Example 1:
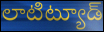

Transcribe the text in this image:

లాటిట్యూడ్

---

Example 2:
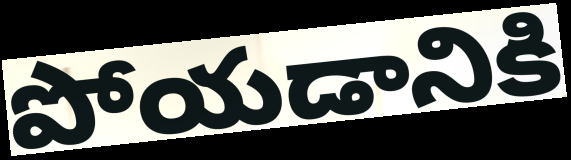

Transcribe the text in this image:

పోయడానికి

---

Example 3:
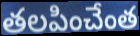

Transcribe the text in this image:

తలపించేంత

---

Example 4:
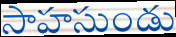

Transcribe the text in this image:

సాహసుండు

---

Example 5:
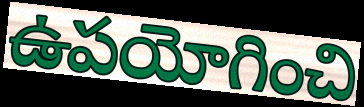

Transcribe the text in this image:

ఉపయోగించి